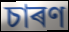
চাৰণ